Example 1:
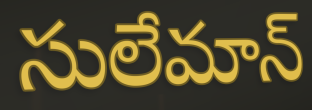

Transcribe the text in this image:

సులేమాన్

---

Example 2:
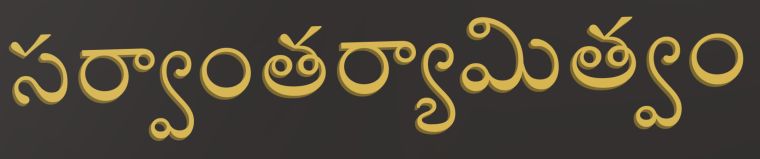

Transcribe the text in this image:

సర్వాంతర్యామిత్వం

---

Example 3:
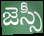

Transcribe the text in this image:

జెస్సీ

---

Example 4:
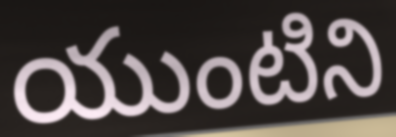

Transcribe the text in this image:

యుంటిని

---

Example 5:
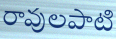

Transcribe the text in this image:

రావులపాటి